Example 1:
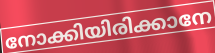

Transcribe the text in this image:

നോക്കിയിരിക്കാനേ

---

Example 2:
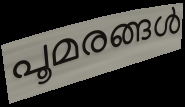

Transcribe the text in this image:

പൂമരങ്ങൾ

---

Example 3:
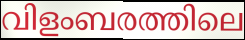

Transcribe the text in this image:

വിളംബരത്തിലെ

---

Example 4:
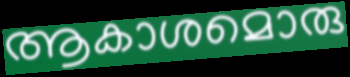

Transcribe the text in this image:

ആകാശമൊരു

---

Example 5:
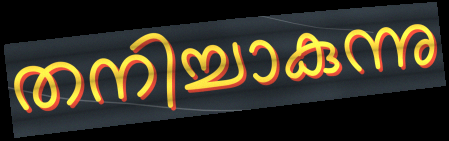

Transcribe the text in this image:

തനിച്ചാകുന്നു